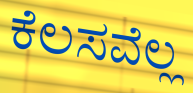
ಕೆಲಸವೆಲ್ಲ